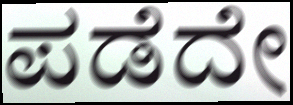
ಪಡೆದೇ